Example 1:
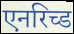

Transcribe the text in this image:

एनरिच्ड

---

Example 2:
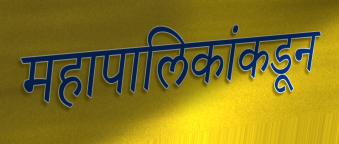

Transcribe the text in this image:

महापालिकांकडून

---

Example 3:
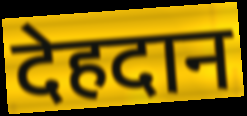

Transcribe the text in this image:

देहदान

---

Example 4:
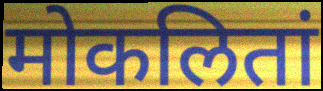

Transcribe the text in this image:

मोकलितां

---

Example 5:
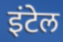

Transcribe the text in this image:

इंटेल